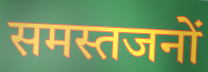
समस्तजनों